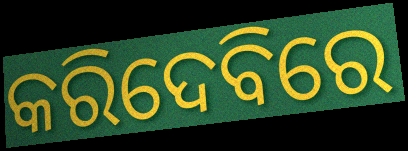
କରିଦେବିରେ